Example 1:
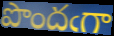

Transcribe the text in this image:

పొందఁగా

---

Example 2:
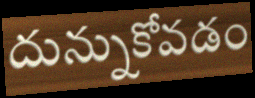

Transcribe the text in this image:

దున్నుకోవడం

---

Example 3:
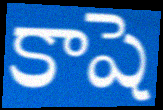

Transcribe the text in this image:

కాషె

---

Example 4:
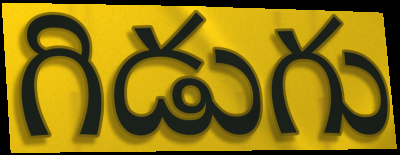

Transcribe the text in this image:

గిడుగు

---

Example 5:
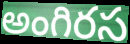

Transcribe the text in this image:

అంగిరస